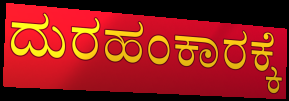
ದುರಹಂಕಾರಕ್ಕೆ